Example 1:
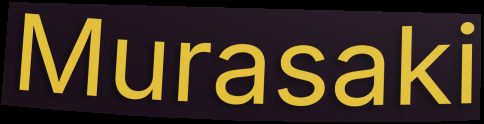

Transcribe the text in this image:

Murasaki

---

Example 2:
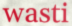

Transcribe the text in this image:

wasti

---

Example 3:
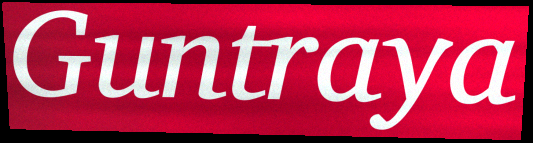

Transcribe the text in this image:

Guntraya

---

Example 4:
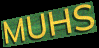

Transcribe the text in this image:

MUHS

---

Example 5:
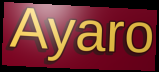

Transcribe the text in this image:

Ayaro